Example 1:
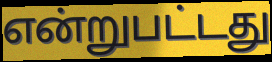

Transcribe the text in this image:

என்றுபட்டது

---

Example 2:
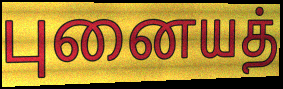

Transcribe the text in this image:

புனையத்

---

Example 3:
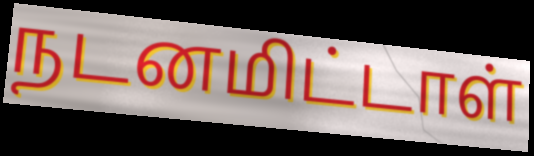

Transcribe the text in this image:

நடனமிட்டாள்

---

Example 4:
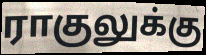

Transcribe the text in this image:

ராகுலுக்கு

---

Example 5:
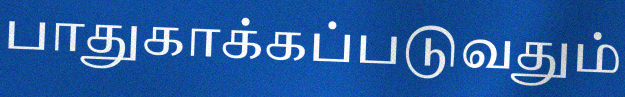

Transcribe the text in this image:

பாதுகாக்கப்படுவதும்